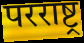
परराष्ट्र